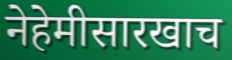
नेहेमीसारखाच